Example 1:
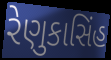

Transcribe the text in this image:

રેણુકાસિંહ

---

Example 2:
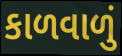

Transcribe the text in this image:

કાળવાળું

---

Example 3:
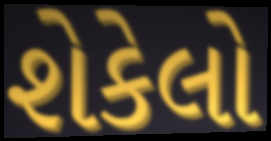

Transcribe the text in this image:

શેકેલો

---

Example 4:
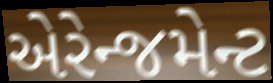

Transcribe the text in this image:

એરેન્જમેન્ટ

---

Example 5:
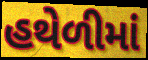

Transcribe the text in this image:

હથેળીમાં